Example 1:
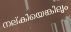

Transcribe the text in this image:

നല്‌കിയെങ്കിലും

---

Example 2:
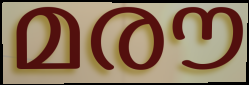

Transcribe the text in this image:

മരൗ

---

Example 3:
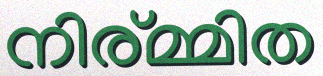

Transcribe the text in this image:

നിര്മ്മിത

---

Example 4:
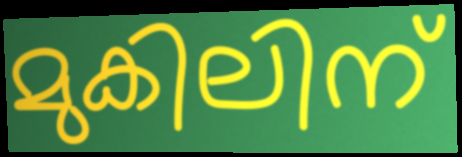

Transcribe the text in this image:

മുകിലിന്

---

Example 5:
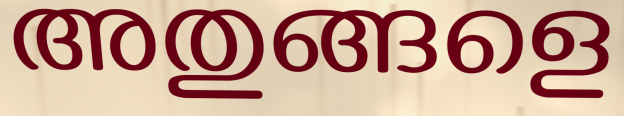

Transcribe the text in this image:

അതുങ്ങളെ